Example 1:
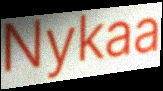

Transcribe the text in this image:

Nykaa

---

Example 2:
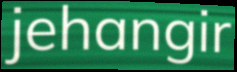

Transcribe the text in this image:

jehangir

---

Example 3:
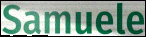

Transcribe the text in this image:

Samuele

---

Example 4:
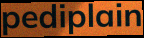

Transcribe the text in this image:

pediplain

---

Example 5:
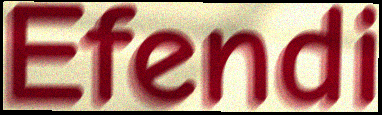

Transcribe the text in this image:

Efendi